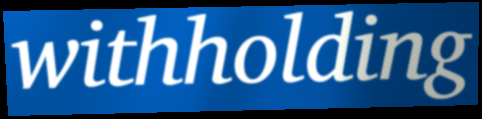
withholding